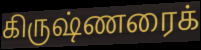
கிருஷ்ணரைக்